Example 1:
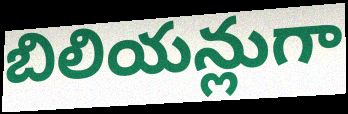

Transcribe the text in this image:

బిలియన్లుగా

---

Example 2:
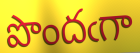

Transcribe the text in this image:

పొందఁగా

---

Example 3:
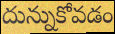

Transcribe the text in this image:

దున్నుకోవడం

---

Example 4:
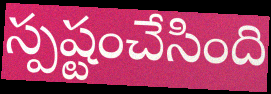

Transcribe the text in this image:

స్పష్టంచేసింది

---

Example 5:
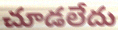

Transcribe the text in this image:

చూడలేదు